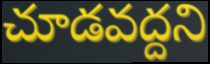
చూడవద్దని